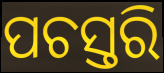
ପଚସ୍ତରି